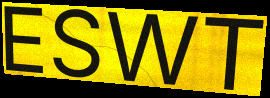
ESWT